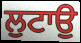
ਲੁਟਾਉ